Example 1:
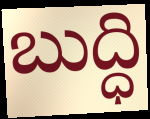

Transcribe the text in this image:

బుద్ధి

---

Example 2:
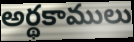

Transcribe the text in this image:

అర్థకాములు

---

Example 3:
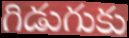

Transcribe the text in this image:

గిడుగుకు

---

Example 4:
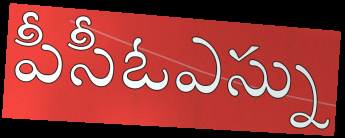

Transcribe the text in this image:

పీసీఓఎస్ను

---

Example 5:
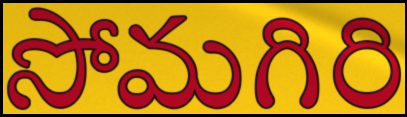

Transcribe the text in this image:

సోమగిరి